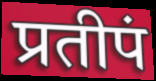
प्रतीपं